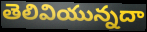
తెలివియున్నదా